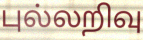
புல்லறிவு